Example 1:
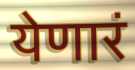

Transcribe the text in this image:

येणारं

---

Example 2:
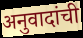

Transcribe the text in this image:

अनुवादांची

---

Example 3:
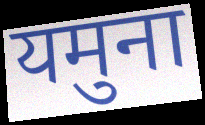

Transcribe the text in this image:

यमुना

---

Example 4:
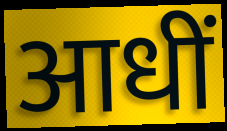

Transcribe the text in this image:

आधीं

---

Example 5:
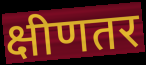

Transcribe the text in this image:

क्षीणतर